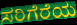
ಸರಿಗೆರೆಯ